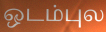
ஒடம்புல